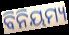
ବିନିୟମ୍ୟ